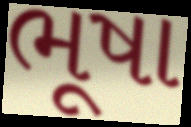
ભૂષા